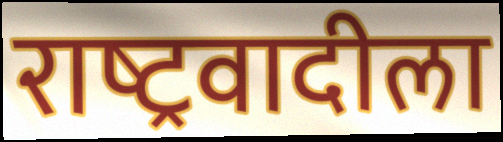
राष्ट्रवादीला